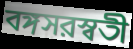
বঙ্গসরস্বতী